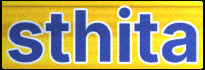
sthita